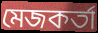
মেজকর্তা